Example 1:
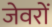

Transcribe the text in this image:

जेवरों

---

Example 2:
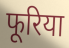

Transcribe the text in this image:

फूरिया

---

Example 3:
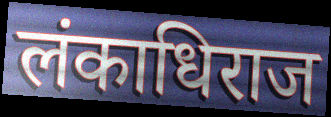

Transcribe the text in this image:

लंकाधिराज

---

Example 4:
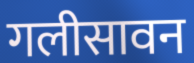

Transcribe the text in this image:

गलीसावन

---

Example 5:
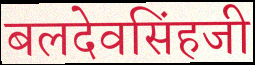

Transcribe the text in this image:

बलदेवसिंहजी